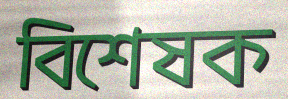
বিশেষক